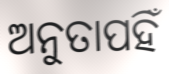
ଅନୁତାପହିଁ